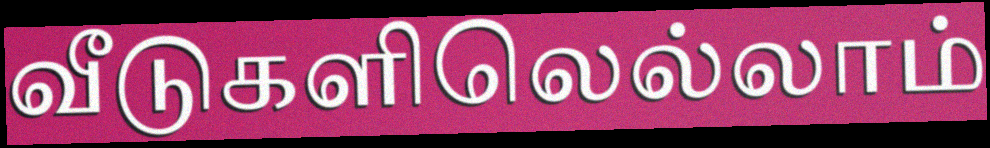
வீடுகளிலெல்லாம்